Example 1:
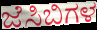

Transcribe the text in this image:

ಜೆಸಿಬಿಗಳ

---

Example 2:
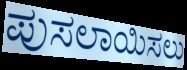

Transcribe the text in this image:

ಪುಸಲಾಯಿಸಲು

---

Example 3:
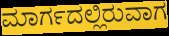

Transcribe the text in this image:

ಮಾರ್ಗದಲ್ಲಿರುವಾಗ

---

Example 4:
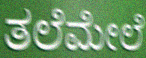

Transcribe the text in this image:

ತಲೆಮೇಲೆ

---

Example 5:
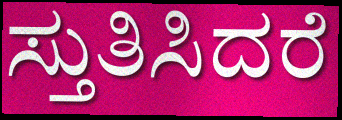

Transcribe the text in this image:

ಸ್ತುತಿಸಿದರೆ